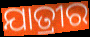
ଯାତ୍ରୀର